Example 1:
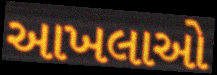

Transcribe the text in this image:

આખલાઓ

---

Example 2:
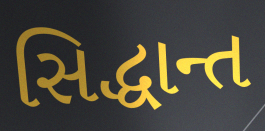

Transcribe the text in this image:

સિદ્ધાન્ત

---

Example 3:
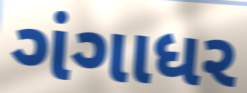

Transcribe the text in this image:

ગંગાધર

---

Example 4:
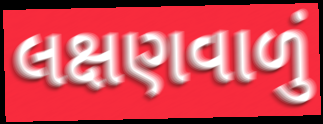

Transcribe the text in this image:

લક્ષણવાળું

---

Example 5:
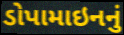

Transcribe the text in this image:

ડોપામાઇનનું